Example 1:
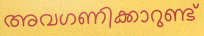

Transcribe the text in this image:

അവഗണിക്കാറുണ്ട്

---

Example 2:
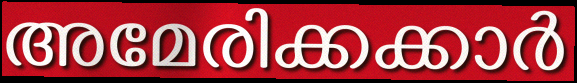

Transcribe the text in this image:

അമേരിക്കക്കാർ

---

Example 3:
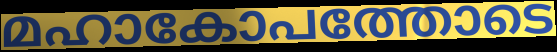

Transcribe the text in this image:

മഹാകോപത്തോടെ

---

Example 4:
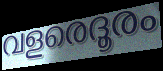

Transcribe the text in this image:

വളരെദൂരം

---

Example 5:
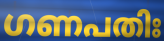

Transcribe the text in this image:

ഗണപതിഃ